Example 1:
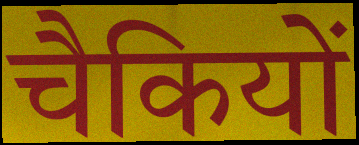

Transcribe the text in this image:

चैकियों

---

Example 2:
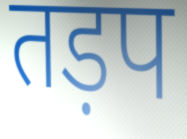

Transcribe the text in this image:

तड़प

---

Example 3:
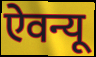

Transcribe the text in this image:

ऐवन्यू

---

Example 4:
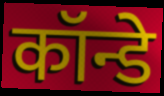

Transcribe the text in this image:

कॉन्डे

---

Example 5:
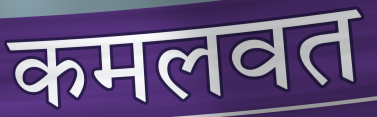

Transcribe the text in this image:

कमलवत